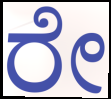
ರೇ